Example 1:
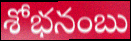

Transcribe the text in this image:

శోభనంబు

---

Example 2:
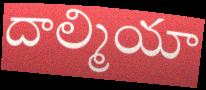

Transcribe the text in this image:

దాల్మియా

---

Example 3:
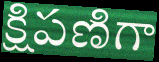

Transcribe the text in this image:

క్షిపణిగా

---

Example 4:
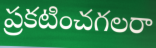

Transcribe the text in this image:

ప్రకటించగలరా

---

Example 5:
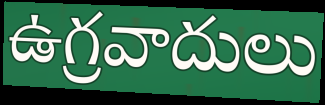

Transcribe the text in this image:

ఉగ్రవాదులు